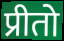
प्रीतो